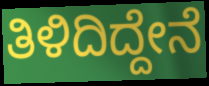
ತಿಳಿದಿದ್ದೇನೆ